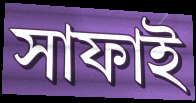
সাফাই